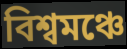
বিশ্বমঞ্চে